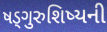
ષડ્ગુરુશિષ્યની